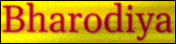
Bharodiya